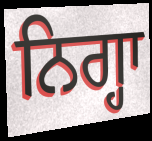
ਨਿਗ੍ਹਾ